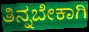
ತಿನ್ನಬೇಕಾಗಿ